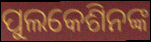
ପୁଲକେଶିନଙ୍କ